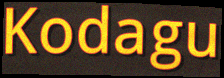
Kodagu